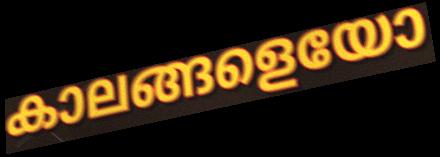
കാലങ്ങളെയോ